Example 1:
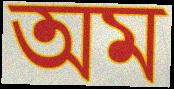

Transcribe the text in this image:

অম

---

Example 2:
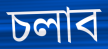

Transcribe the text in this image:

চলাব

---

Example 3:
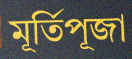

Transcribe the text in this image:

মূৰ্তিপূজা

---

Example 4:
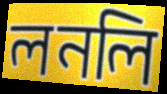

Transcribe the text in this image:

লনলি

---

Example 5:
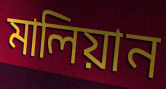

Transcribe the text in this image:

মালিয়ান